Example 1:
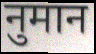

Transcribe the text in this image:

नुमान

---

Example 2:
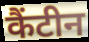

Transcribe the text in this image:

कैंटीन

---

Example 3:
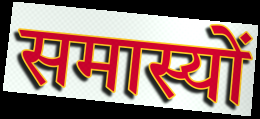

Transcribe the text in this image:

समास्यों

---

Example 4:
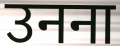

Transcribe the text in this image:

उनना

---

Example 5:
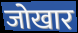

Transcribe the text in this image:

जोखार